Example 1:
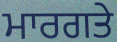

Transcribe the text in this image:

ਮਾਰਗਤੇ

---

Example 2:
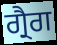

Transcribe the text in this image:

ਗ੍ਰੈਗ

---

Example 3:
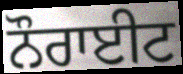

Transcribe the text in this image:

ਨੌਰਾਈਟ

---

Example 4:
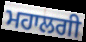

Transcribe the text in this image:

ਮਹਾਲਗੀ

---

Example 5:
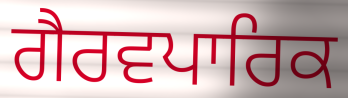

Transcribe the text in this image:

ਗੈਰਵਪਾਰਿਕ